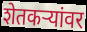
शेतकऱ्यांवर